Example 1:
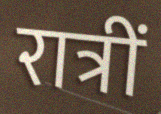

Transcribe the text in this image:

रात्रीं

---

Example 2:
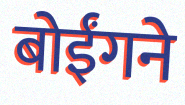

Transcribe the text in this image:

बोईंगने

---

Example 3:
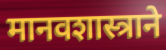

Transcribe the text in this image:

मानवशास्त्राने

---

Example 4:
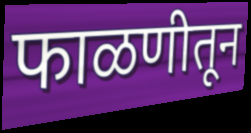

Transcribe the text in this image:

फाळणीतून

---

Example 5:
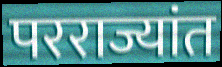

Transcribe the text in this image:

परराज्यांत